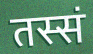
तस्सं